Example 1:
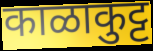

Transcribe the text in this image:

काळाकुट्ट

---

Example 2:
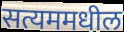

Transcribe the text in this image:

सत्यममधील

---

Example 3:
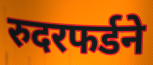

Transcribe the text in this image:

रुदरफर्डने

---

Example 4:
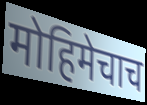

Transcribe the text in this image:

मोहिमेचाच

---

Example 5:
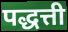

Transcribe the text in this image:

पद्धत्ती